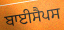
ਬਾਈਸੈਪਸ